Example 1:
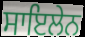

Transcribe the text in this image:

ਸਾਇਲੇਨ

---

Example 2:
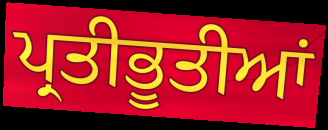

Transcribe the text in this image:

ਪ੍ਰਤੀਭੂਤੀਆਂ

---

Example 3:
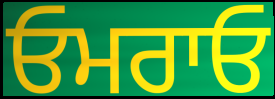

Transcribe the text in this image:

ਓਮਰਾਓ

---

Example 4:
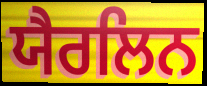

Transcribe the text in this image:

ਯੈਰਲਿਨ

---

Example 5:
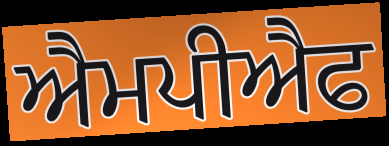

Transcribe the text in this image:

ਐਮਪੀਐਫ